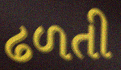
ઢળતી